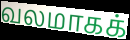
வலமாகக்